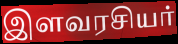
இளவரசியர்